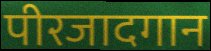
पीरजादगान